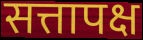
सत्तापक्ष